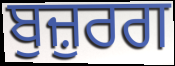
ਬੁਜ਼ੁਰਗ